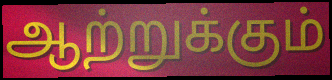
ஆற்றுக்கும்